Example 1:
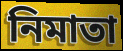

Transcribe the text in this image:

নিমাতা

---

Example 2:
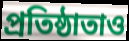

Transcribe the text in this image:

প্রতিষ্ঠাতাও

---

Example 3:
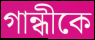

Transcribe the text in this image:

গান্ধীকে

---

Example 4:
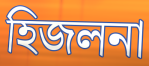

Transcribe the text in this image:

হিজলনা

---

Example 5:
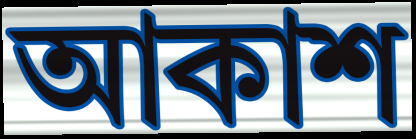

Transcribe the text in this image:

আকাশ